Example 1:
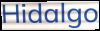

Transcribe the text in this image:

Hidalgo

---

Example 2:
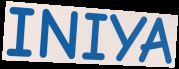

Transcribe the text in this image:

INIYA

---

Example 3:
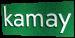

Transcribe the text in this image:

kamay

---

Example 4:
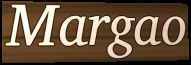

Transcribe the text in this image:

Margao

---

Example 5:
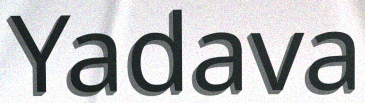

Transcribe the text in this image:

Yadava